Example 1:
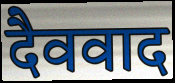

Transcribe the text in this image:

दैववाद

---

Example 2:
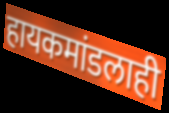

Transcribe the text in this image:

हायकमांडलाही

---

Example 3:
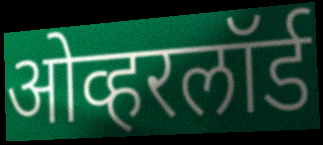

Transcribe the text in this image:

ओव्हरलॉर्ड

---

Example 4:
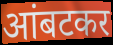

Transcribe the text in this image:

आंबटकर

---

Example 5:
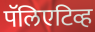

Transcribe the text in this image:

पॅलिएटिव्ह